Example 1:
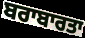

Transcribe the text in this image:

ਬਰਾਬਾਰਤਾ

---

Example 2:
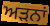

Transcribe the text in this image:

ਅੜਨਾਂ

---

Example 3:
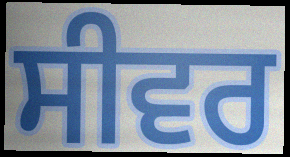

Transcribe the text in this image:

ਸੀਵਰ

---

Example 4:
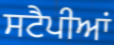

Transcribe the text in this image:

ਸਟੈਪੀਆਂ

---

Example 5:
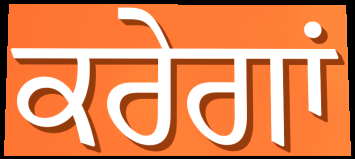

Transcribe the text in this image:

ਕਰੇਗਾਂ